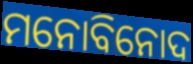
ମନୋବିନୋଦ